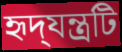
হৃদ্‌যন্ত্রটি